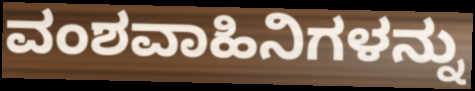
ವಂಶವಾಹಿನಿಗಳನ್ನು